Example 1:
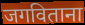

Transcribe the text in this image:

जगविताना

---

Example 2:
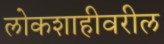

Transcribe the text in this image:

लोकशाहीवरील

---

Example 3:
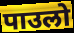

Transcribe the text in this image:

पाउलो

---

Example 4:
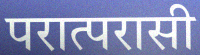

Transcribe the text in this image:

परात्परासी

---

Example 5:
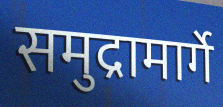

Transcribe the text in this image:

समुद्रामार्गे